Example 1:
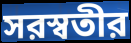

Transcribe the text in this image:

সরস্বতীর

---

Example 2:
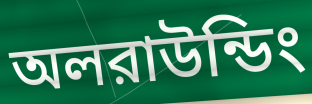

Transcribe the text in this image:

অলরাউন্ডিং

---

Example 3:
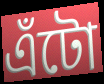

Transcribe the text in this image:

এঁটো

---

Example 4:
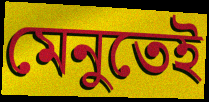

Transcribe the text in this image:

মেনুতেই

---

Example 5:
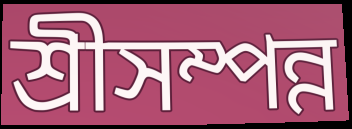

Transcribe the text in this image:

শ্রীসম্পন্ন